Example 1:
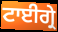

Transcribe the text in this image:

ਟਾਈਗ੍ਰੇ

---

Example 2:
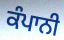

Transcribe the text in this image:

ਕੰਪਾਨੀ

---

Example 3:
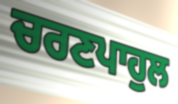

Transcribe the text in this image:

ਚਰਣਪਾਹੁਲ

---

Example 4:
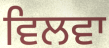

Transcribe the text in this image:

ਵਿਲਵਾ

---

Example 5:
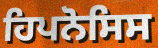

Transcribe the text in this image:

ਹਿਪਨੋਸਿਸ